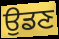
ਉਡਣ